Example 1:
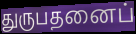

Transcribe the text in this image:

துருபதனைப்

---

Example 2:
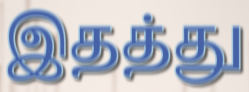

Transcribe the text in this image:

இதத்து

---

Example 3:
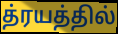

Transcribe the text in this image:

த்ரயத்தில்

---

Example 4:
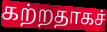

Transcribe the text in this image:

கற்றதாகச்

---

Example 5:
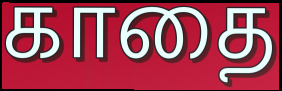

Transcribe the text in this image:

காதை